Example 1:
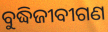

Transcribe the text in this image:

ବୁଦ୍ଧିଜୀବୀଗଣ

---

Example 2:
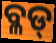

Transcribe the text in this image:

ବ୍ଳଡ୍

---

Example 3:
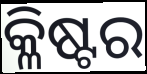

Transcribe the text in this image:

କ୍ଳିଷ୍ଟର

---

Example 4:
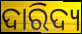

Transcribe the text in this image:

ଦାରିଦ୍ୟ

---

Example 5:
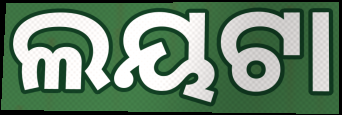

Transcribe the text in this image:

ଲୟଟା